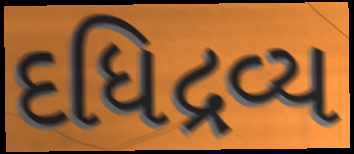
દધિદ્રવ્ય